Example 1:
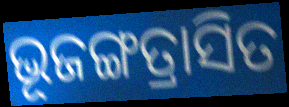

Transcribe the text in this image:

ଭୂଜଙ୍ଗତ୍ରାସିତ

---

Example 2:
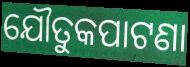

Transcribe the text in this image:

ଯୌତୁକପାଟଣା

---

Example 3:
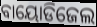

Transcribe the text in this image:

ବାୟୋଡିଜେଲ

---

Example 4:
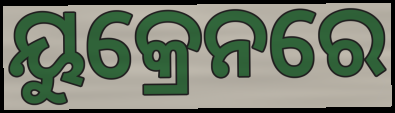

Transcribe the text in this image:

ୟୁକ୍ରେନରେ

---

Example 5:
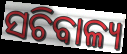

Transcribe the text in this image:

ସଚିବାଳ୍ୟ